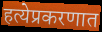
हत्येप्रकरणात